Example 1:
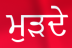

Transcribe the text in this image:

ਮੁਡ਼ਦੇ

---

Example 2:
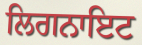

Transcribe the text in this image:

ਲਿਗਨਾਇਟ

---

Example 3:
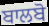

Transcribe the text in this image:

ਬਾਲਬੋ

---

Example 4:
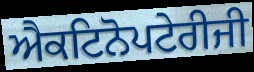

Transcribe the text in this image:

ਐਕਟਿਨੋਪਟੇਰੀਜੀ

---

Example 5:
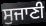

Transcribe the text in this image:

ਸੁਜਾਣੀ